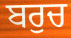
ਬਰੁਚ